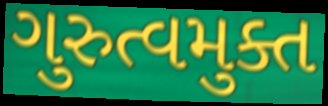
ગુરુત્વમુક્ત